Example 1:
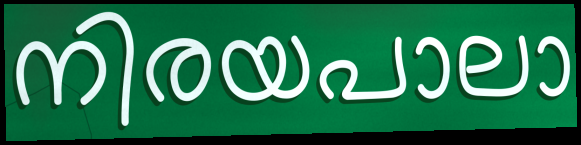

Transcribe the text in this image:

നിരയപാലാ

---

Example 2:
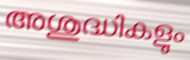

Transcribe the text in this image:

അശുദ്ധികളും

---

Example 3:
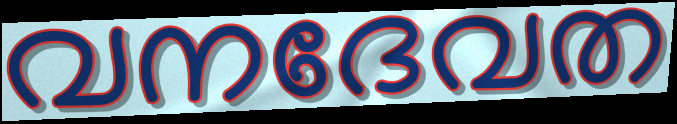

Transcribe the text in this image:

വനദേവത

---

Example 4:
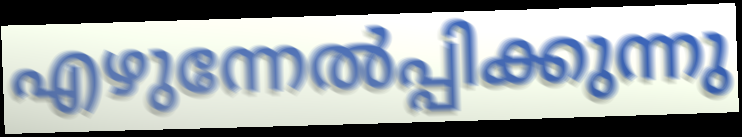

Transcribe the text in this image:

എഴുന്നേൽപ്പിക്കുന്നു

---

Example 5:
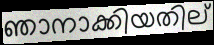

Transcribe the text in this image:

ഞാനാക്കിയതില്